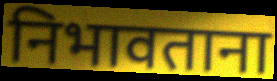
निभावताना